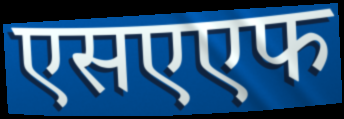
एसएएफ